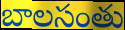
బాలసంతు